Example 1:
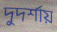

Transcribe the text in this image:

দুদর্শায়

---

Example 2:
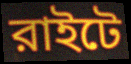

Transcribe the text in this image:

রাইটে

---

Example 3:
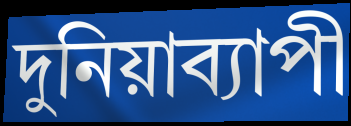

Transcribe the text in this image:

দুনিয়াব্যাপী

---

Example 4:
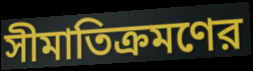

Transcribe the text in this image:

সীমাতিক্রমণের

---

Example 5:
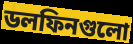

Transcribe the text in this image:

ডলফিনগুলো